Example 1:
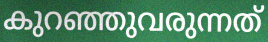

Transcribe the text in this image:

കുറഞ്ഞുവരുന്നത്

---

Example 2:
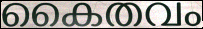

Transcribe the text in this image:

കൈതവം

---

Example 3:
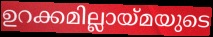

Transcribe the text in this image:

ഉറക്കമില്ലായ്മയുടെ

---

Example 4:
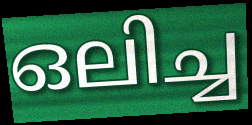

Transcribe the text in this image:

ഒലിച്ച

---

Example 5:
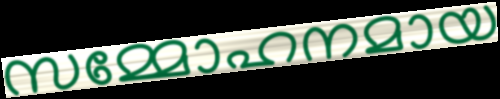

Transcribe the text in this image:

സമ്മോഹനമായ